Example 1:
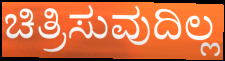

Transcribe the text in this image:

ಚಿತ್ರಿಸುವುದಿಲ್ಲ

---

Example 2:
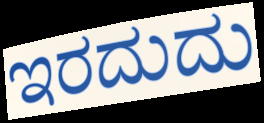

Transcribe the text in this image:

ಇರದುದು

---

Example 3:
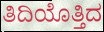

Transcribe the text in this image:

ತಿದಿಯೊತ್ತಿದ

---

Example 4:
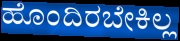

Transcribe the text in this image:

ಹೊಂದಿರಬೇಕಿಲ್ಲ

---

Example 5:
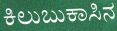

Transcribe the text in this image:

ಕಿಲುಬುಕಾಸಿನ